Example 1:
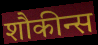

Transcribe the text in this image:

शौकीन्स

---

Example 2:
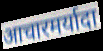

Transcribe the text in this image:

आचारमर्यादा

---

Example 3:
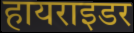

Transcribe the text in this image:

हायराइडर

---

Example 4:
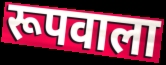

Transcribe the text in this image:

रूपवाला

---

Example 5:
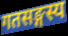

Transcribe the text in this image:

गतसङ्गस्य